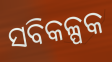
ସବିକଳ୍ପକ